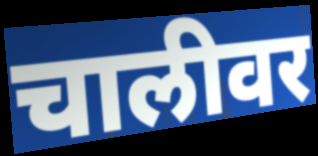
चालीवर